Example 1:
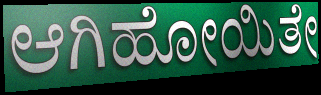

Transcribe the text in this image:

ಆಗಿಹೋಯಿತೇ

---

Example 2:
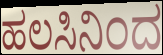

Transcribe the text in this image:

ಹಲಸಿನಿಂದ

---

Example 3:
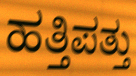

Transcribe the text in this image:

ಹತ್ತಿಪತ್ತು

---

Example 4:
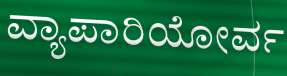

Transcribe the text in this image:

ವ್ಯಾಪಾರಿಯೋರ್ವ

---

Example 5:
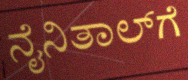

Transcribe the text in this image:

ನೈನಿತಾಲ್‌ಗೆ